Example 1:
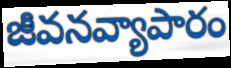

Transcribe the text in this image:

జీవనవ్యాపారం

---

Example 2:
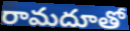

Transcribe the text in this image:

రామదూతో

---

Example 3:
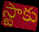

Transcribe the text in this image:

స్టాకు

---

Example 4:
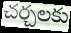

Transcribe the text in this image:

చర్చలకు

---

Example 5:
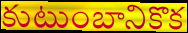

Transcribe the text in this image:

కుటుంబానికొక